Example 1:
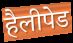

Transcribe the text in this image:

हैलीपेड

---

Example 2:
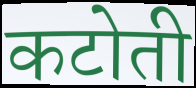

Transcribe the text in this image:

कटोती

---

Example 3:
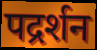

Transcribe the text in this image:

पद्रर्शन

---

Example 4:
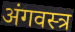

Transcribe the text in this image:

अंगवस्त्र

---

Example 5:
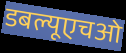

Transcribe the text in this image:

डबल्यूएचओ